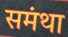
समंथा